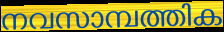
നവസാമ്പത്തിക